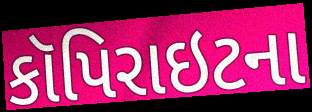
કૉપિરાઇટના